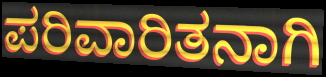
ಪರಿವಾರಿತನಾಗಿ